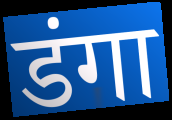
डंगा